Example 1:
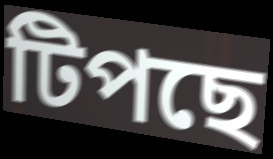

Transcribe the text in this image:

টিপছে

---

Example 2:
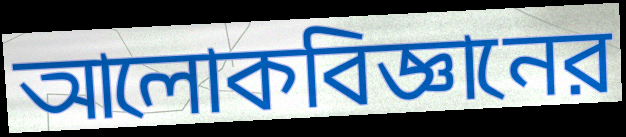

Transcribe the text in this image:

আলোকবিজ্ঞানের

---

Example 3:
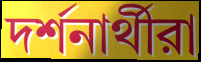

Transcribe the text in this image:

দর্শনার্থীরা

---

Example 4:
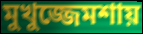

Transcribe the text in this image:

মুখুজ্জেমশায়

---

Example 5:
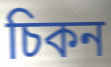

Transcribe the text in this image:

চিকন